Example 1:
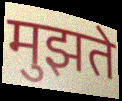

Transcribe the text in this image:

मुझते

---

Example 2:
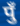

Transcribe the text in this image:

पुँ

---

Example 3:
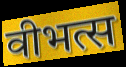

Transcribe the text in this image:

वीभत्स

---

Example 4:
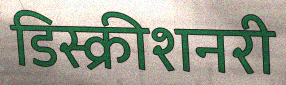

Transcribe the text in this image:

डिस्क्रीशनरी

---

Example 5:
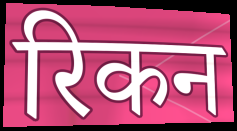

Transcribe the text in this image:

रिकन